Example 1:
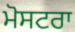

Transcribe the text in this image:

ਮੋਸਟਰਾ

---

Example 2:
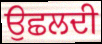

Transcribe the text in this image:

ਉਛਲਦੀ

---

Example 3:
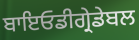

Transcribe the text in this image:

ਬਾਇਓਡੀਗ੍ਰੇਡੇਬਲ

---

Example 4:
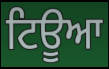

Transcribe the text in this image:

ਟਿਊਆ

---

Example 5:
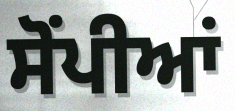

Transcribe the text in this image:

ਸੋਂਪੀਆਂ